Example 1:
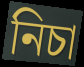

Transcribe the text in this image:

নিচা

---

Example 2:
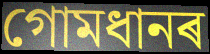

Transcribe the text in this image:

গোমধানৰ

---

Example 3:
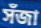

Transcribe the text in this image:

সঁজা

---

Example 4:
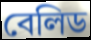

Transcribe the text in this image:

বেলিড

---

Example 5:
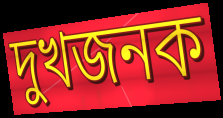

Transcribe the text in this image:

দুখজনক